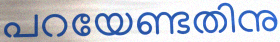
പറയേണ്ടതിനു